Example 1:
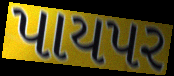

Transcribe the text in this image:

પાયપર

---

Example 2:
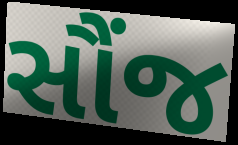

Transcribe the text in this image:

સૌંજ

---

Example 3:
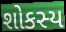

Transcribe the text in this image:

શોકસ્ય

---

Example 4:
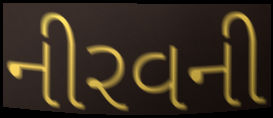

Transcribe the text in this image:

નીરવની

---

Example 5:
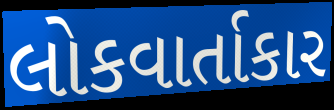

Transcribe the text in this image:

લોકવાર્તાકાર